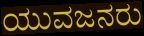
ಯುವಜನರು